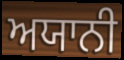
ਅਯਾਨੀ